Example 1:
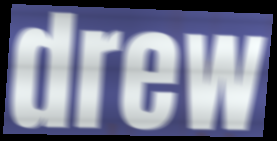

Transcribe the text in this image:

drew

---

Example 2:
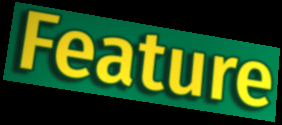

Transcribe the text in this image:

Feature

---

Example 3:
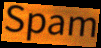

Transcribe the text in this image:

Spam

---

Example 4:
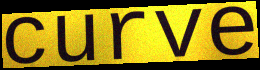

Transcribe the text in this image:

curve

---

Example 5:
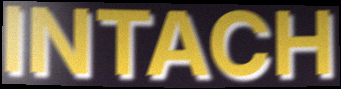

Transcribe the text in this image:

INTACH